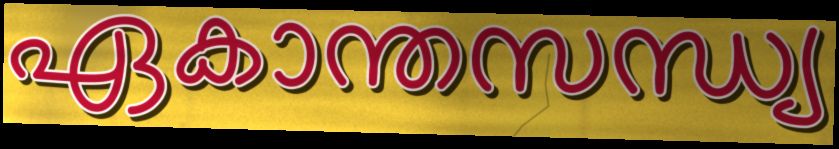
ഏകാന്തസന്ധ്യ